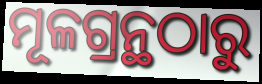
ମୂଳଗ୍ରନ୍ଥଠାରୁ